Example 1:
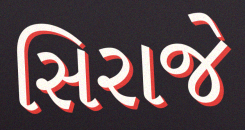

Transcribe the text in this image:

સિરાજે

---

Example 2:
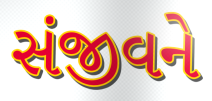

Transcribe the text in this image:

સંજીવને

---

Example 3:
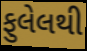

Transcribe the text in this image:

ફુલેલથી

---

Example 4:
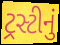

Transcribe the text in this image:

ટ્રસ્ટીનું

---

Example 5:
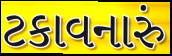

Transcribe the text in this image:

ટકાવનારું